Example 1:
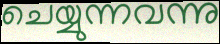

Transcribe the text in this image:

ചെയ്യുന്നവന്നു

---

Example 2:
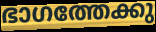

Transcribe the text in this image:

ഭാഗത്തേക്കു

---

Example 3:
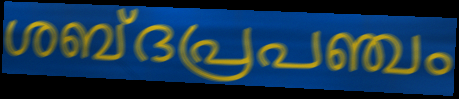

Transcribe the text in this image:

ശബ്ദപ്രപഞ്ചം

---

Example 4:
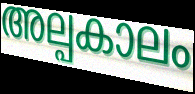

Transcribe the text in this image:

അല്പകാലം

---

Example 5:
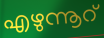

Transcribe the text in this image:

എഴുന്നൂറ്